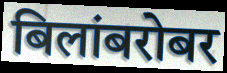
बिलांबरोबर